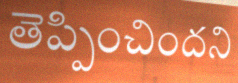
తెప్పించిందని